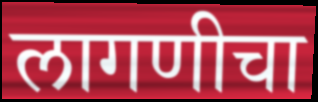
लागणीचा